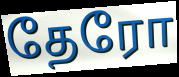
தேரோ